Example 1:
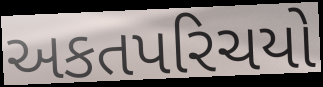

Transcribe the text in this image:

અકતપરિચયો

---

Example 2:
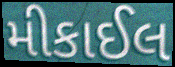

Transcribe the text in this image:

મીકાઈલ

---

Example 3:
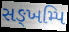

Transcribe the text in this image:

સઙ્ખમ્પિ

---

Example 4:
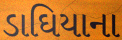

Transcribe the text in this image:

ડાઘિયાના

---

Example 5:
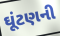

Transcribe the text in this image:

ઘૂંટણની